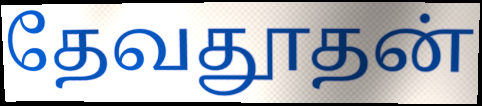
தேவதூதன்